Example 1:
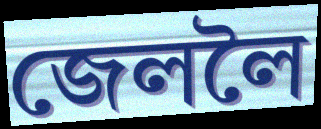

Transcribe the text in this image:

জেললৈ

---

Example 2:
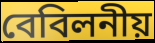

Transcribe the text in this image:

বেবিলনীয়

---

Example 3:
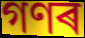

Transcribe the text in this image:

গণৰ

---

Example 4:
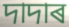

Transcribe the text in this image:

দাদাৰ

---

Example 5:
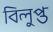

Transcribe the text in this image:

বিলুপ্ত